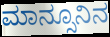
ಮಾನ್ಸೂನಿನ